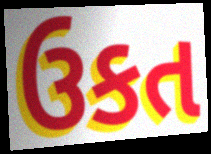
ઉકત